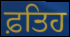
ਫ਼ਤਿਹ